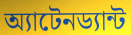
অ্যাটেনড্যান্ট